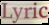
Lyric